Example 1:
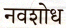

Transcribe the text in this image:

नवशोध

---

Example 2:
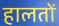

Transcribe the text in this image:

हालतों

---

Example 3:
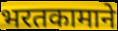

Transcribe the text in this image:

भरतकामाने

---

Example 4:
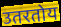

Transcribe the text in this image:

उतरतोय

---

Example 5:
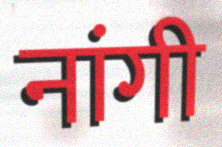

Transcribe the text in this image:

नांगी